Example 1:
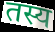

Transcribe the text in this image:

तस्य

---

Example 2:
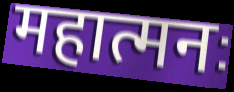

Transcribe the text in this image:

महात्मनः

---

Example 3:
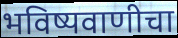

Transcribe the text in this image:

भविष्यवाणीचा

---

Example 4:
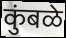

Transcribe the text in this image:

कुंबळे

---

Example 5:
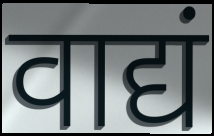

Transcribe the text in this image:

वाद्यं